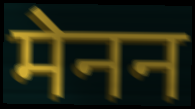
मेनन